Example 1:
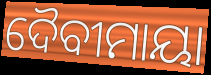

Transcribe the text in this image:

ଦୈବୀମାୟା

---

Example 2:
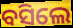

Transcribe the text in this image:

ବସିଲେ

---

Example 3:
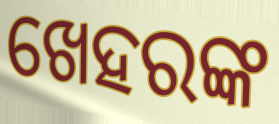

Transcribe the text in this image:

ଖେହରଙ୍କ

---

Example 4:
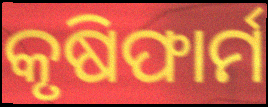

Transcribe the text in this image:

କୃଷିଫାର୍ମ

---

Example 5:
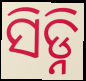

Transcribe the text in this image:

ସିଡ୍ନି